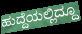
ಹುದ್ದೆಯಲ್ಲಿದ್ದೂ